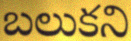
బలుకని